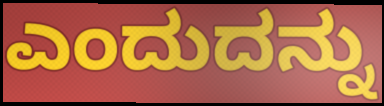
ಎಂದುದನ್ನು